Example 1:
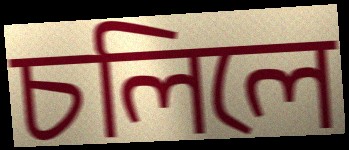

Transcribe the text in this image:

চলিলে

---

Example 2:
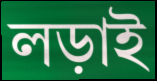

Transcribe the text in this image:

লড়াই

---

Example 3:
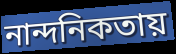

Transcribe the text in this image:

নান্দনিকতায়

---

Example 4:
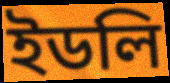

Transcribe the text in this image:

ইডলি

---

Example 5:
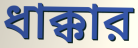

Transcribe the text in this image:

ধাক্কার